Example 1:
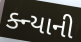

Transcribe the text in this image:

ક્ન્યાની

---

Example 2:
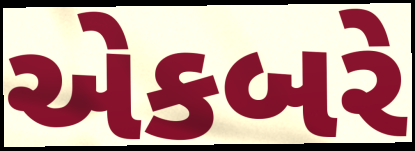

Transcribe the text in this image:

એકબરે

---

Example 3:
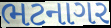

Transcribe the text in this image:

ભટનાગર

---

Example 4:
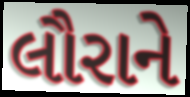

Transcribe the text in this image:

લૌરાને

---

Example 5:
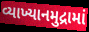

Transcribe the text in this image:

વ્યાખ્યાનમુદ્રામાં